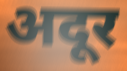
अदूर